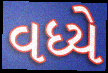
વધ્યે